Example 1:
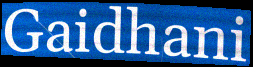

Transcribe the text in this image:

Gaidhani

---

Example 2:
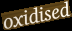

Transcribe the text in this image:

oxidised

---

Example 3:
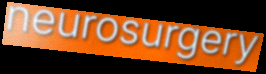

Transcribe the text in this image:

neurosurgery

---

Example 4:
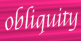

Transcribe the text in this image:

obliquity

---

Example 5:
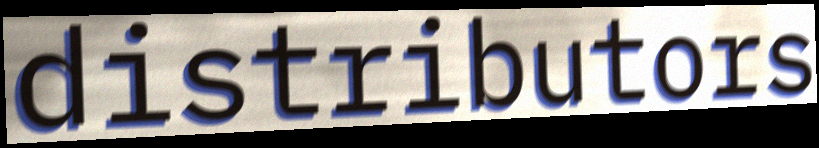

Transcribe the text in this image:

distributors